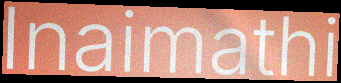
Inaimathi